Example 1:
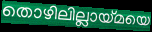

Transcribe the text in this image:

തൊഴിലില്ലായ്മയെ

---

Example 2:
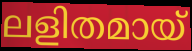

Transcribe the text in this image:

ലളിതമായ്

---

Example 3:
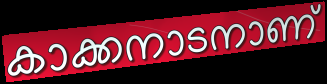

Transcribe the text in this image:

കാക്കനാടനാണ്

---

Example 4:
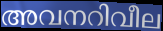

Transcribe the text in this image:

അവനറിവീല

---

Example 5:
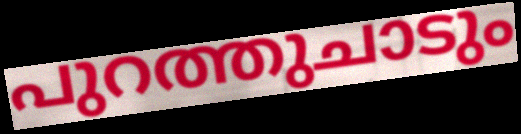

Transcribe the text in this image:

പുറത്തുചാടും